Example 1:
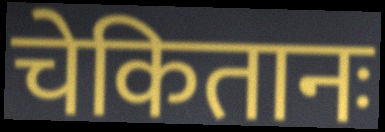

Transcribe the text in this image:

चेकितानः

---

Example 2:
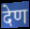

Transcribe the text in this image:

देण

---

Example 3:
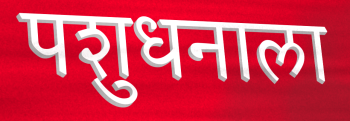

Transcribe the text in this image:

पशुधनाला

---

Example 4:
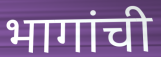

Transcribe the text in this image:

भागांची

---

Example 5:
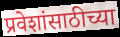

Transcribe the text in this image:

प्रवेशांसाठीच्या